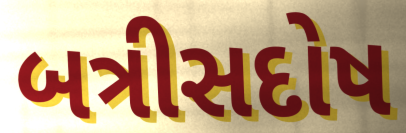
બત્રીસદોષ